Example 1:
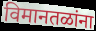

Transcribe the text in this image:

विमानतळांना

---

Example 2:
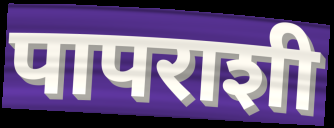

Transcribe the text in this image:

पापराशी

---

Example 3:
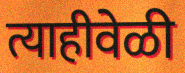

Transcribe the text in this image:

त्याहीवेळी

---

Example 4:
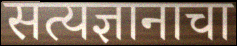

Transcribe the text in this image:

सत्यज्ञानाचा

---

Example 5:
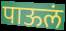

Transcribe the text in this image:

पाऊलं